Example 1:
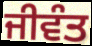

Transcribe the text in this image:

ਜੀਵੰਤ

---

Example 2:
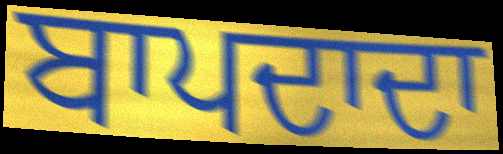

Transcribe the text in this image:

ਬਾਪਦਾਦਾ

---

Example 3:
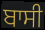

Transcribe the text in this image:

ਬਾਸੀ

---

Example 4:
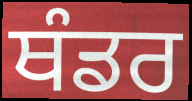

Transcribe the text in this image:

ਥੰਡਰ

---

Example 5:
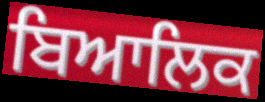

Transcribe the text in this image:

ਬਿਆਲਿਕ